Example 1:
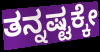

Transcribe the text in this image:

ತನ್ನಷ್ಟಕ್ಕೇ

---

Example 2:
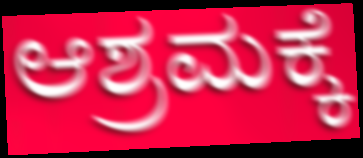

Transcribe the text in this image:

ಆಶ್ರಮಕ್ಕೆ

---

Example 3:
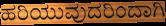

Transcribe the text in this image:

ಹರಿಯುವುದರಿಂದಾಗಿ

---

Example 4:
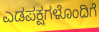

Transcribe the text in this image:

ಎಡಪಕ್ಷಗಳೊಂದಿಗೆ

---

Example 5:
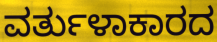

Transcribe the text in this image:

ವರ್ತುಳಾಕಾರದ